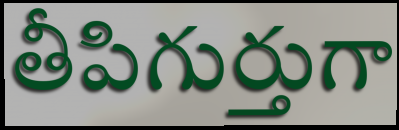
తీపిగుర్తుగా